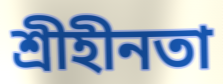
শ্রীহীনতা